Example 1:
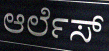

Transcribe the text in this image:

ಆರ್ಲೆಸ್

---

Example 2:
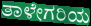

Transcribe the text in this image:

ತಾಳೇಗರಿಯ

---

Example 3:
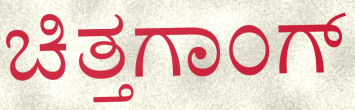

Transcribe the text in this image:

ಚಿತ್ತಗಾಂಗ್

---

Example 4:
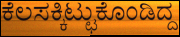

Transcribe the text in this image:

ಕೆಲಸಕ್ಕಿಟ್ಟುಕೊಂಡಿದ್ದ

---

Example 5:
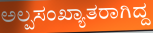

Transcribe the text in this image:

ಅಲ್ಪಸಂಖ್ಯಾತರಾಗಿದ್ದ